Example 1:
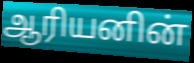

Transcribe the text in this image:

ஆரியனின்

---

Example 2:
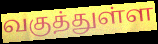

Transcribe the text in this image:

வகுத்துள்ள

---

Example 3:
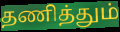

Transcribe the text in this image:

தணித்தும்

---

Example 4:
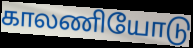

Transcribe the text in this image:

காலணியோடு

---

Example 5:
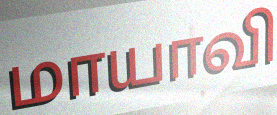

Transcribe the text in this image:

மாயாவி